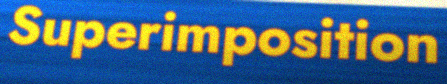
Superimposition